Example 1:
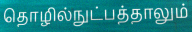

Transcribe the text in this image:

தொழில்நுட்பத்தாலும்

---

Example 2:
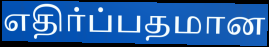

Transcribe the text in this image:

எதிர்ப்பதமான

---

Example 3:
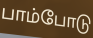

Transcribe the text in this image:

பாம்போடு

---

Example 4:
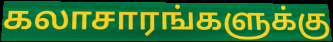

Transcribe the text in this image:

கலாசாரங்களுக்கு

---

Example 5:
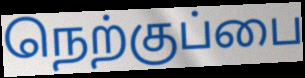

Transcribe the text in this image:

நெற்குப்பை